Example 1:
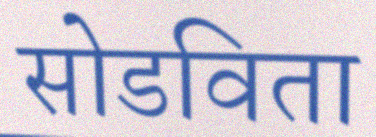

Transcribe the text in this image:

सोडविता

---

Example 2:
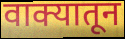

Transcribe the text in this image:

वाक्यातून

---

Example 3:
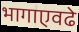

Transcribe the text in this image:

भागाएवढे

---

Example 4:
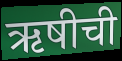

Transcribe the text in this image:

ॠषीची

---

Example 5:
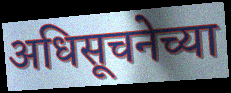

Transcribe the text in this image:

अधिसूचनेच्या